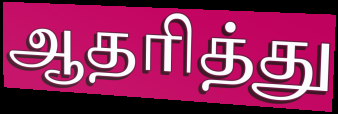
ஆதரித்து